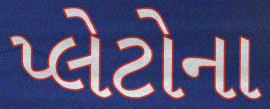
પ્લેટોના